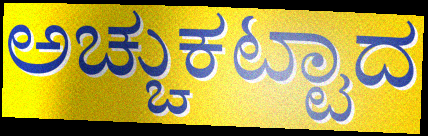
ಅಚ್ಚುಕಟ್ಟಾದ